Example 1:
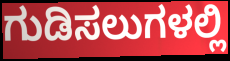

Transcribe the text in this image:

ಗುಡಿಸಲುಗಳಲ್ಲಿ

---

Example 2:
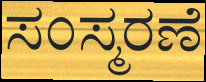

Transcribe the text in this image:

ಸಂಸ್ಮರಣೆ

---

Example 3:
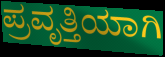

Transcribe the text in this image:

ಪ್ರವೃತ್ತಿಯಾಗಿ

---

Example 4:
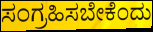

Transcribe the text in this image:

ಸಂಗ್ರಹಿಸಬೇಕೆಂದು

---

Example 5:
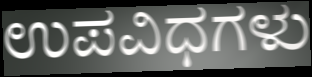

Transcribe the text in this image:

ಉಪವಿಧಗಳು